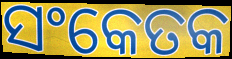
ସଂକେତକ